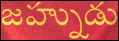
జహ్నుడు